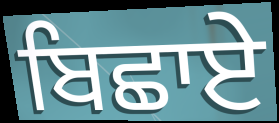
ਬਿਛਾਏ